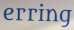
erring